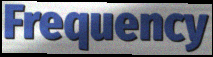
Frequency